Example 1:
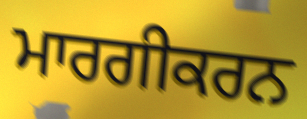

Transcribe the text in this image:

ਮਾਰਗੀਕਰਨ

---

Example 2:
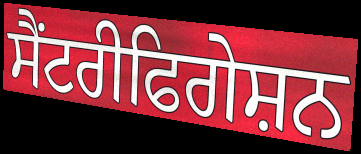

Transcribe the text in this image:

ਸੈਂਟਰੀਫਿਗੇਸ਼ਨ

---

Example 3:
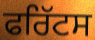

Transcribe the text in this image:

ਫਰਿੱਟਸ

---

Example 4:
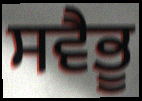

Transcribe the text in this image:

ਸਵੈਭੂ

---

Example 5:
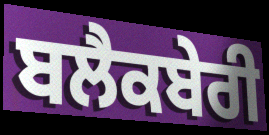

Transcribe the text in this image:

ਬਲੈਕਬੇਰੀ